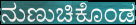
ನುಣುಚಿಕೊಂಡ